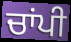
ਚਾਂਪੀ